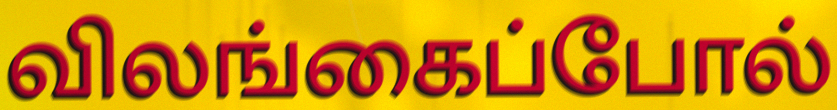
விலங்கைப்போல்